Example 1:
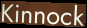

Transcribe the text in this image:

Kinnock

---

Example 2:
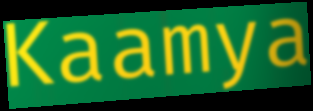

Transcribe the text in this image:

Kaamya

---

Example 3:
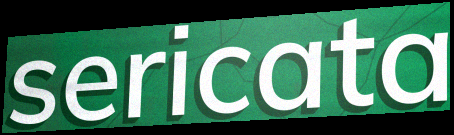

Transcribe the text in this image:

sericata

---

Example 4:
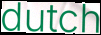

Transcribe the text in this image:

dutch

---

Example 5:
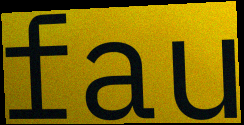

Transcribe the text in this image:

fau